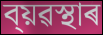
ব্য়ৱস্থাৰ